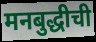
मनबुद्धीची